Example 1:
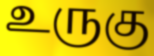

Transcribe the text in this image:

உருகு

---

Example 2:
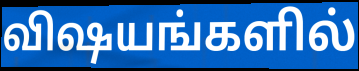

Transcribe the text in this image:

விஷயங்களில்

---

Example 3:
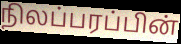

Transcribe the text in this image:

நிலப்பரப்பின்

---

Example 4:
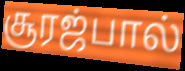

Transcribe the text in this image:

சூரஜ்பால்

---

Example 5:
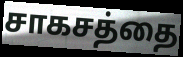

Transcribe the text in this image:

சாகசத்தை